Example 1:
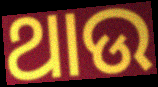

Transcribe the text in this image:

ଥାଉ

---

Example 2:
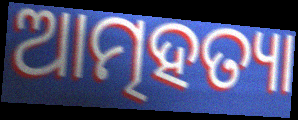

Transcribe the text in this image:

ଆତ୍ମହତ୍ୟା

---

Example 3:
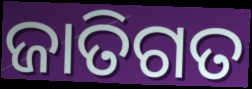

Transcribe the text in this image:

ଜାତିଗତ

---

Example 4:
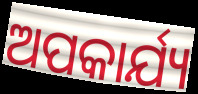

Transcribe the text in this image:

ଅପକାର୍ଯ୍ୟ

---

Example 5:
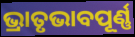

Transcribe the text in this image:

ଭ୍ରାତୃଭାବପୂର୍ଣ୍ଣ